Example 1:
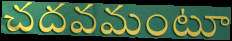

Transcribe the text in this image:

చదవమంటూ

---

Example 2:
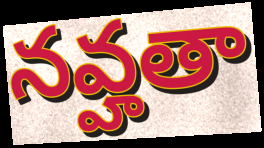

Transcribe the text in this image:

నవ్హతా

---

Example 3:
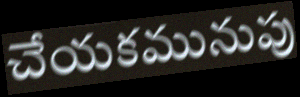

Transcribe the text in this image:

చేయకమునుపు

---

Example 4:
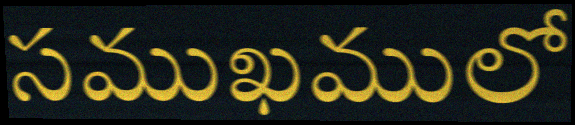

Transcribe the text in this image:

సముఖములో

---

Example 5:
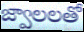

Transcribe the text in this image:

జ్వాలలతో